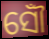
ସୌଁ